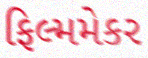
ફિલ્મમેકર